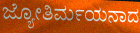
ಜ್ಯೋತಿರ್ಮಯನಾದ